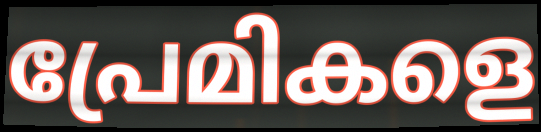
പ്രേമികളെ